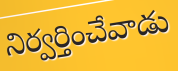
నిర్వర్తించేవాడు